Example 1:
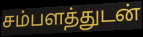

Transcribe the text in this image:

சம்பளத்துடன்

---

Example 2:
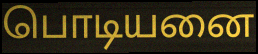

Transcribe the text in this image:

பொடியனை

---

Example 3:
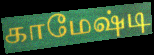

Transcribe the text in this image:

காமேஷ்டி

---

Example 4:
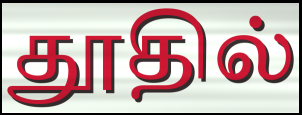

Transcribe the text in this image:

தூதில்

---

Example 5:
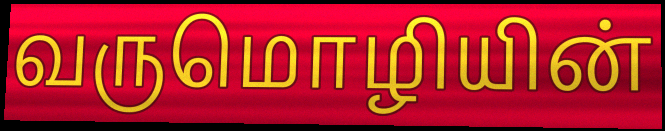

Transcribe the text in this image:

வருமொழியின்